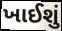
ખાઈશું